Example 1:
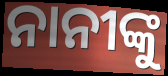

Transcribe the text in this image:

ନାନୀଙ୍କୁ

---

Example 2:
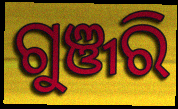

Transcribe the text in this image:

ଗୁଞ୍ଜରି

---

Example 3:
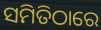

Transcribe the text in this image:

ସମିତିଠାରେ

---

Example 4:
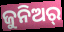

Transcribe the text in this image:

ଜୁନିଅର୍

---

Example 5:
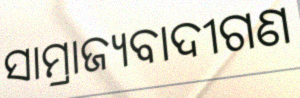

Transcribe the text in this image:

ସାମ୍ରାଜ୍ୟବାଦୀଗଣ